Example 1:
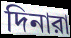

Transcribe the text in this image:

দিনারা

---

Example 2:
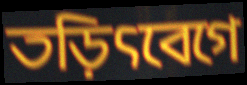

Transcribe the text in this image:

তড়িৎবেগে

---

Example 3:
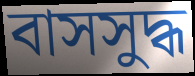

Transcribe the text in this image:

বাসসুদ্ধ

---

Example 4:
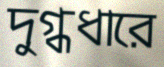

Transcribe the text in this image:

দুগ্ধধারে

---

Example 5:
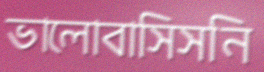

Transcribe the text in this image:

ভালোবাসিসনি